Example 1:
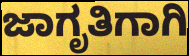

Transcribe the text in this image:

ಜಾಗೃತಿಗಾಗಿ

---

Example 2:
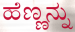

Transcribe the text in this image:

ಹೆಣ್ಣನ್ನು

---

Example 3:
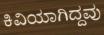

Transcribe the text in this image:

ಕಿವಿಯಾಗಿದ್ದವು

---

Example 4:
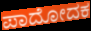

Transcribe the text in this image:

ಪಾದೋದಕ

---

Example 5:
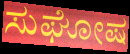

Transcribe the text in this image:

ಸುಘೋಷ